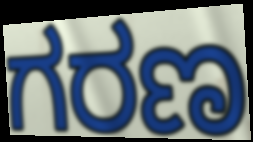
ಗರಣ